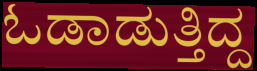
ಓಡಾಡುತ್ತಿದ್ದ